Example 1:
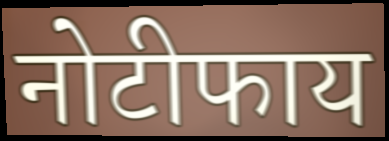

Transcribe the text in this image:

नोटीफाय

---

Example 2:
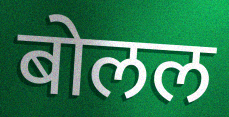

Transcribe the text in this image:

बोलल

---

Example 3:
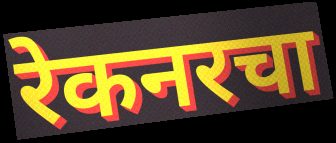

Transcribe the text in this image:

रेकनरचा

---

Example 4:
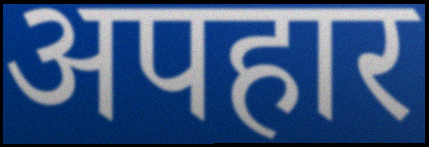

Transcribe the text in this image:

अपहार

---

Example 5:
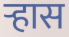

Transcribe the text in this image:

ऱ्हास